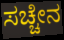
ಸಚ್ಚೇನ